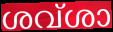
ശവ്ശാ